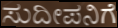
ಸುದೀಪನಿಗೆ